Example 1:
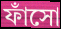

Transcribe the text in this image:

ফাঁসো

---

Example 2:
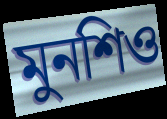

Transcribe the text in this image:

মুনশিও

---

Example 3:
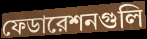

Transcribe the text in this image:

ফেডারেশনগুলি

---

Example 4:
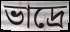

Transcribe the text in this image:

ভাদ্রে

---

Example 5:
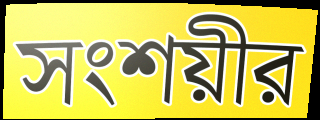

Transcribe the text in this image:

সংশয়ীর